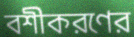
বশীকরণের